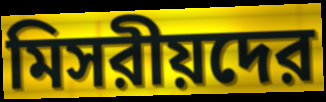
মিসরীয়দের